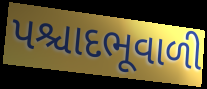
પશ્ચાદભૂવાળી